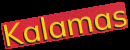
Kalamas